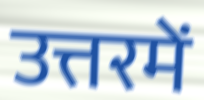
उत्तरमें